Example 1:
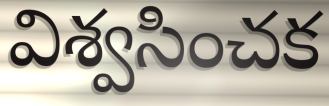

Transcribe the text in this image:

విశ్వసించక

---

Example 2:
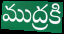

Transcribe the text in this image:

ముద్రకి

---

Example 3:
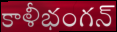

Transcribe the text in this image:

కాళీభంగన్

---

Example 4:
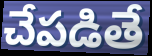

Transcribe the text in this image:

చేపడితే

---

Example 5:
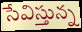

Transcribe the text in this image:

సేవిస్తున్న